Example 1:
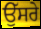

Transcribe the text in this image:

ਉੱਸਰੇ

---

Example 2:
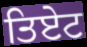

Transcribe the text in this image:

ਤਿਏਟ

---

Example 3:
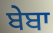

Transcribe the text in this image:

ਬੇਬਾ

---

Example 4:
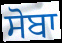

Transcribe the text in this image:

ਸੋਬਾ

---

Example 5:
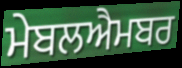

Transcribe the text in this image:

ਮੇਬਲਐਮਬਰ